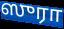
ஸுரா